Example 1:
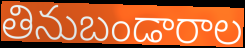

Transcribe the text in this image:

తినుబండారాల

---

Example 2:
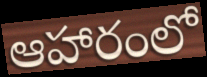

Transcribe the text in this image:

ఆహారంలో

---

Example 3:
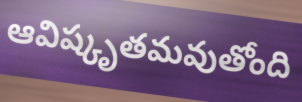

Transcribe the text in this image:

ఆవిష్కృతమవుతోంది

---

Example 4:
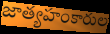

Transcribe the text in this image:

జాత్యహంకారుల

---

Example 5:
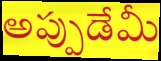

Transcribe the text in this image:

అప్పుడేమీ